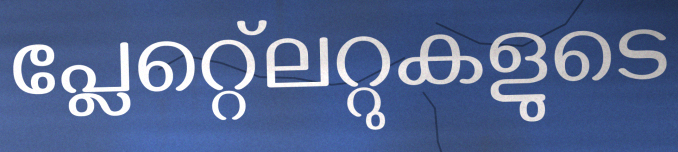
പ്ലേറ്റ്ലെറ്റുകളുടെ